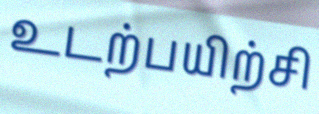
உடற்பயிற்சி